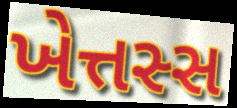
ખેત્તસ્સ